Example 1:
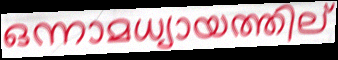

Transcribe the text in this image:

ഒന്നാമധ്യായത്തില്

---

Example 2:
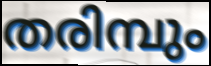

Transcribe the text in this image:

തരിമ്പും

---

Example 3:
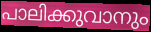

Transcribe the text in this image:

പാലിക്കുവാനും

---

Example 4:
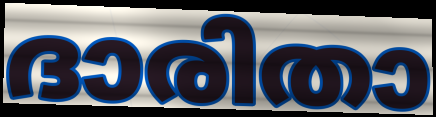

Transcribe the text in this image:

ദാരിതാ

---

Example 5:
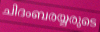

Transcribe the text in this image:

ചിദംബരയ്യരുടെ